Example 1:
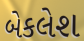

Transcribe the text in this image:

બેકલેશ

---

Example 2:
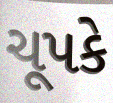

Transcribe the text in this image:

ચૂપકે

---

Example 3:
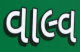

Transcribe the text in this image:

વાલ્વ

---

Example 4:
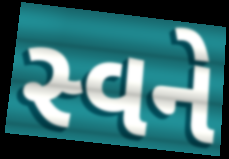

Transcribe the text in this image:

સ્વને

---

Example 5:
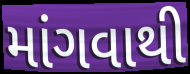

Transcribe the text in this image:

માંગવાથી